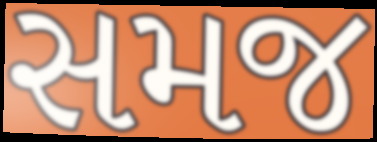
સમજ